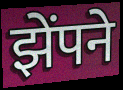
झेंपने